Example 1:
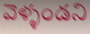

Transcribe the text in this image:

వెళ్ళండని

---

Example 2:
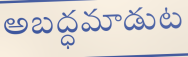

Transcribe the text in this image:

అబద్ధమాడుట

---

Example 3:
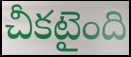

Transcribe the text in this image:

చీకటైంది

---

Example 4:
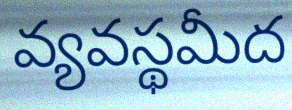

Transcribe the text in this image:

వ్యవస్థమీద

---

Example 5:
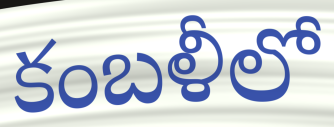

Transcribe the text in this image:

కంబళీలో